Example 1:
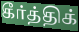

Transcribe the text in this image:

கீர்த்திக்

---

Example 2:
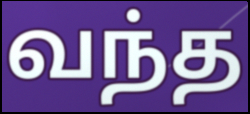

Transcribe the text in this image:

வந்த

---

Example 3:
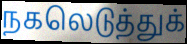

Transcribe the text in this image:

நகலெடுத்துக்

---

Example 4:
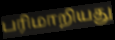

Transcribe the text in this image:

பரிமாறியது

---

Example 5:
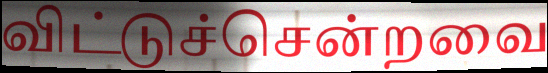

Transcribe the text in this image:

விட்டுச்சென்றவை